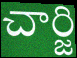
చార్జి